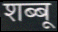
शब्बू